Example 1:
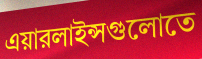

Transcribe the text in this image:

এয়ারলাইন্সগুলোতে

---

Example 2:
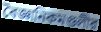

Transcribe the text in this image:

বৈজ্ঞানিকমণ্ডলীর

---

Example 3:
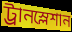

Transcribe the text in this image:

ট্রানস্লেশান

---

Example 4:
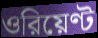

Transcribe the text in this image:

ওরিয়েণ্ট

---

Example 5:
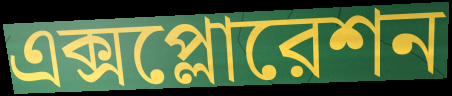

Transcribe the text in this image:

এক্সপ্লোরেশন